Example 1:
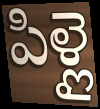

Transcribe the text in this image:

పిళ్లై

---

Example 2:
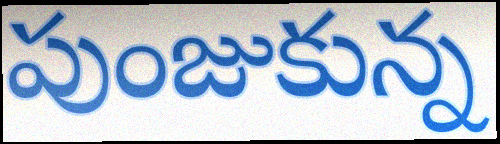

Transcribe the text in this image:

పుంజుకున్న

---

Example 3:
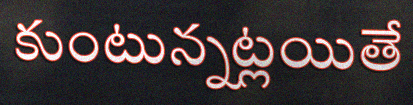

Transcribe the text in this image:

కుంటున్నట్లయితే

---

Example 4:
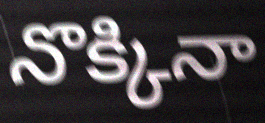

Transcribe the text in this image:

నొక్కినా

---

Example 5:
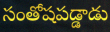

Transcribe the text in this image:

సంతోషపడ్డాడు